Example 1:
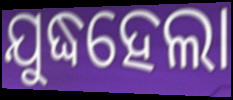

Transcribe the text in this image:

ଯୁଦ୍ଧହେଲା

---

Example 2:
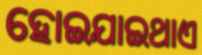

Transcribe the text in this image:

ହୋଇଯାଇଥାଏ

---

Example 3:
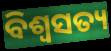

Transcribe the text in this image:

ବିଶ୍ୱସତ୍ୟ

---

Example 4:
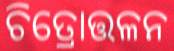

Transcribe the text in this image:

ଚିତ୍ରୋତ୍ତଳନ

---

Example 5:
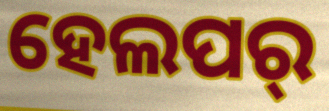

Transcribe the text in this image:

ହେଲପର୍